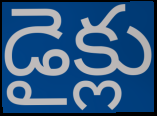
డైక్లు